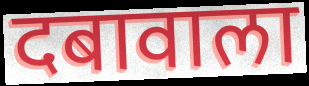
दबावाला